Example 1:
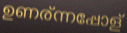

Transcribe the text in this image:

ഉണര്ന്നപ്പോള്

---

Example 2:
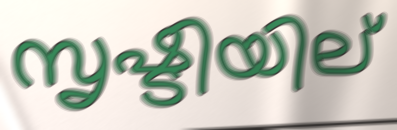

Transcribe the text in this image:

സൃഷ്ടിയില്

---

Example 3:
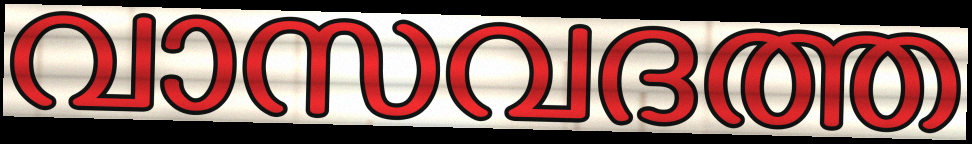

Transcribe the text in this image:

വാസവദത്ത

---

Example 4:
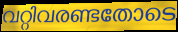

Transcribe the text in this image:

വറ്റിവരണ്ടതോടെ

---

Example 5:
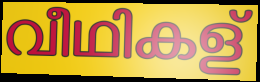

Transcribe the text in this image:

വീഥികള്